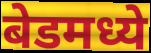
बेडमध्ये